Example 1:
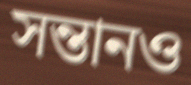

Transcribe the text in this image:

সন্তানও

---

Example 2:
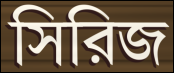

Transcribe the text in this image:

সিরিজ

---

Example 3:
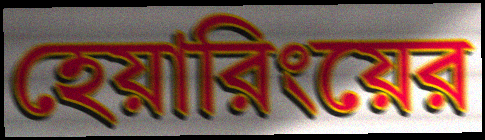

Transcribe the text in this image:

হেয়ারিংয়ের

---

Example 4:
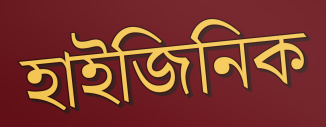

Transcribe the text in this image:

হাইজিনিক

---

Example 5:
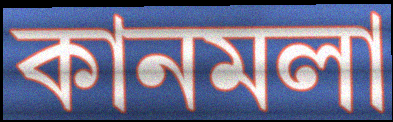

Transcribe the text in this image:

কানমলা